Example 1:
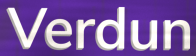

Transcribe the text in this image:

Verdun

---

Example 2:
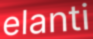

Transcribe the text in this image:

elanti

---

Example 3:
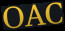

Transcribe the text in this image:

OAC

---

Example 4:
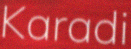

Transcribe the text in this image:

Karadi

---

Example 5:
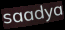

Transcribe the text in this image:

saadya